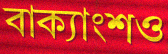
বাক্যাংশও